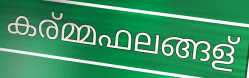
കര്മ്മഫലങ്ങള്